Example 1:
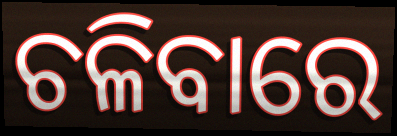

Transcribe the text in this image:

ଚଳିବାରେ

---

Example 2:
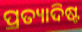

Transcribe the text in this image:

ପ୍ରତ୍ୟାଦିଷ୍ଟ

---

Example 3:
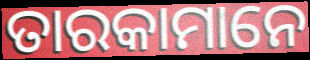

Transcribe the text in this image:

ତାରକାମାନେ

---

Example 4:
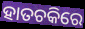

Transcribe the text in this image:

ହାତଚକିରେ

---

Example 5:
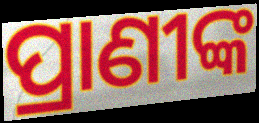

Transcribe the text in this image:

ପ୍ରାଣୀଙ୍କ